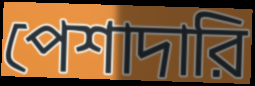
পেশাদারি